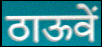
ठाऊवें